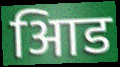
आिड